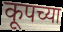
कूपच्या